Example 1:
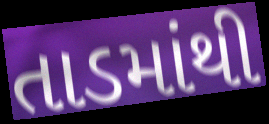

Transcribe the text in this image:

તાડમાંથી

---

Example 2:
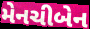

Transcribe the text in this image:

મેનચીબેન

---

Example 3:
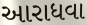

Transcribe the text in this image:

આરાધવા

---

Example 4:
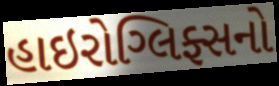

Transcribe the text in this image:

હાઇરોગ્લિફ્સનો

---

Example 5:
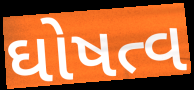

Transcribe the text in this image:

ઘોષત્વ